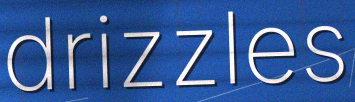
drizzles